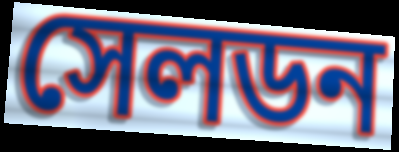
সেলডন